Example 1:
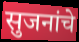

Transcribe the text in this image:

सुजनांचे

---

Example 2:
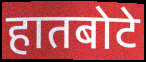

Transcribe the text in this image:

हातबोटे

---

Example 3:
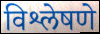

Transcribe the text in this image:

विश्लेषणे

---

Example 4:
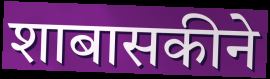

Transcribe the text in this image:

शाबासकीने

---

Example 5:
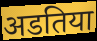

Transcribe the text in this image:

अडतिया